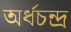
অর্ধচন্দ্র